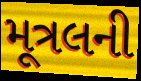
મૂત્રલની